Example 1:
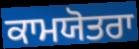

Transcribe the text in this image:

ਕਾਮਯੋਤਰਾ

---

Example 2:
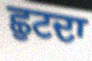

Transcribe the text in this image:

ਛੁਟਦਾ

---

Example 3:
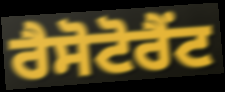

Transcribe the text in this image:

ਰੈਸੋਟੋਰੈਂਟ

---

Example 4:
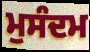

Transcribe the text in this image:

ਮੁਸੰਦਮ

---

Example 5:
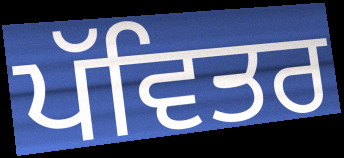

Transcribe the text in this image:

ਪੱਵਿਤਰ